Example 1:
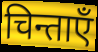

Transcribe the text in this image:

चिन्ताएँ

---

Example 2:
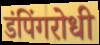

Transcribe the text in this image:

डंपिंगरोधी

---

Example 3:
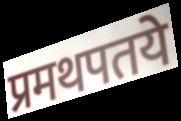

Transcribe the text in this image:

प्रमथपतये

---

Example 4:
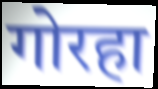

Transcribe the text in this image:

गोरहा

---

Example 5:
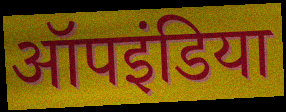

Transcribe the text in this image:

ऑपइंडिया